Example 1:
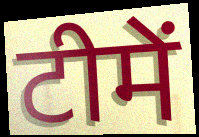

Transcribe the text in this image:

टीमें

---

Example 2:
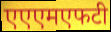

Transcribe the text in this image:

एएएमएफटी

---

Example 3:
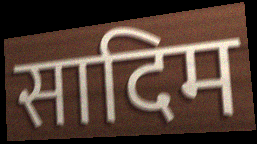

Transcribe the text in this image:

सादिम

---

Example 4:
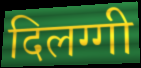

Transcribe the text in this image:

दिलग्गी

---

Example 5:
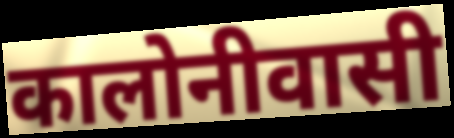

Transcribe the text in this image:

कालोनीवासी